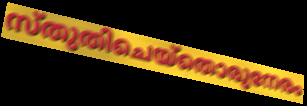
സ്തുതിചെയ്തൊരുനേരം